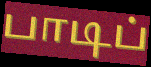
பாடிப்